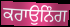
ਕਰਾਉਨਿੰਗ